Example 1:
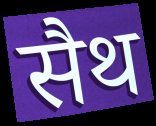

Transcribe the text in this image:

सैथ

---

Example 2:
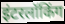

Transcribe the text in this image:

इंटरलॉकिंग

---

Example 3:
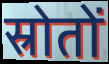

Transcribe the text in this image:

स्रोतों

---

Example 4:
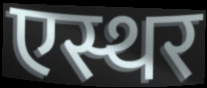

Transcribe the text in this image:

एस्थर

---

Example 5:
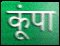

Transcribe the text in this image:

कूंपा